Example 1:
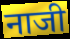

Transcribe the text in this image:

नाजी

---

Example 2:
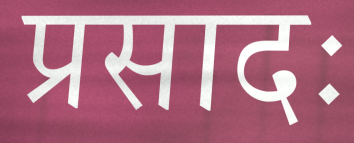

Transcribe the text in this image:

प्रसादः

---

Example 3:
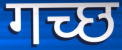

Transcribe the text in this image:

गच्छ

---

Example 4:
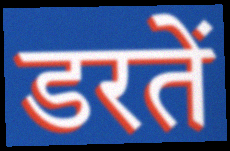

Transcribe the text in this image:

डरतें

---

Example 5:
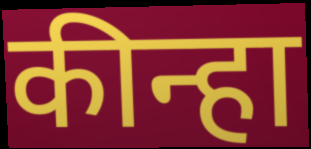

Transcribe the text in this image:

कीन्हा